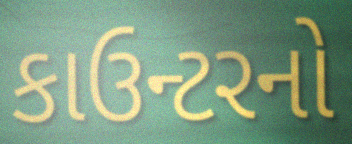
કાઉન્ટરનો